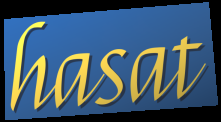
hasat